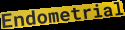
Endometrial